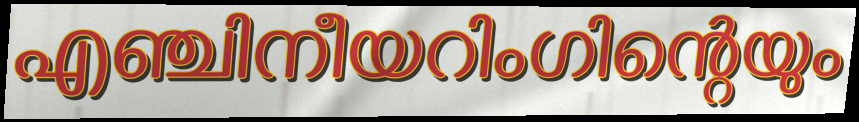
എഞ്ചിനീയറിംഗിന്റെയും